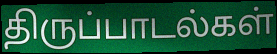
திருப்பாடல்கள்